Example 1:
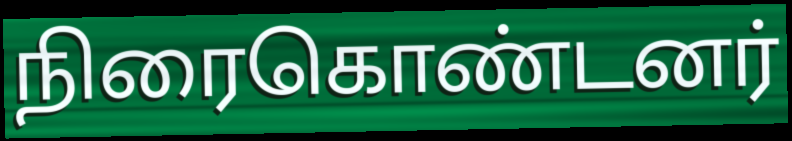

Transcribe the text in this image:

நிரைகொண்டனர்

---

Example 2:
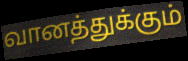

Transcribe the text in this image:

வானத்துக்கும்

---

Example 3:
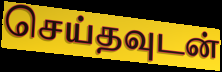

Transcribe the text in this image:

செய்தவுடன்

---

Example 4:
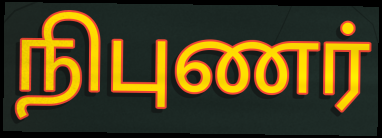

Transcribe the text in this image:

நிபுணர்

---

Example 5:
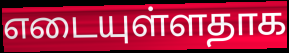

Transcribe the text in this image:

எடையுள்ளதாக